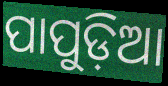
ପାପୁଡ଼ିଆ